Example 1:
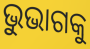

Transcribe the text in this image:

ଭୁଭାଗକୁ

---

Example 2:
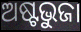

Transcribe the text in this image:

ଅଷ୍ଟଭୁଜା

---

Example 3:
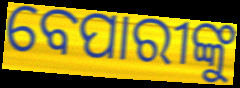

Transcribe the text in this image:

ବେପାରୀଙ୍କୁ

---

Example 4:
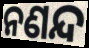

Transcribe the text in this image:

ନଣନ୍ଦ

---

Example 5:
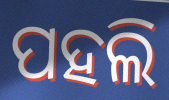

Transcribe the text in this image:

ପହଲି